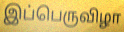
இப்பெருவிழா